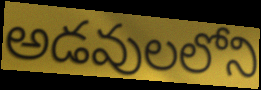
అడవులలోని